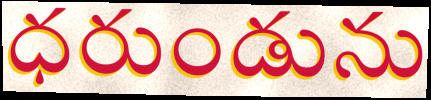
ధరుండును